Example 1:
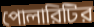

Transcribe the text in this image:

পোলারিটির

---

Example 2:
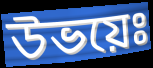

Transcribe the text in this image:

উভয়েঃ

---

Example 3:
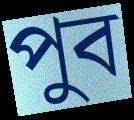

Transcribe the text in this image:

পুব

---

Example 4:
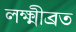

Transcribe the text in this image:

লক্ষ্মীব্রত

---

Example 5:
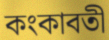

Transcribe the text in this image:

কংকাবতী